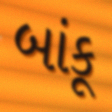
બાંકૂ